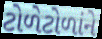
ટોળેટોળાંને